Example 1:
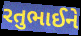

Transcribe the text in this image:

રતુભાઈને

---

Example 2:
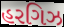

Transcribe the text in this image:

હરગિઝ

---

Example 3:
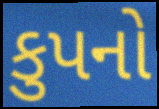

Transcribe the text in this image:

કુપનો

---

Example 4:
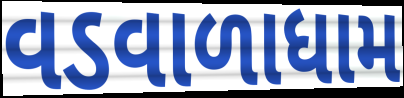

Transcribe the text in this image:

વડવાળાધામ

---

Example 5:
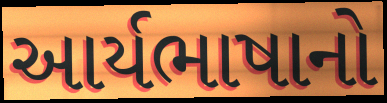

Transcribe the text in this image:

આર્યભાષાનો